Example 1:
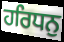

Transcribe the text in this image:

ਹਰਿਧਨੁ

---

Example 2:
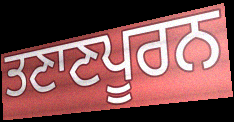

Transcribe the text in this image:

ਤਣਾਣਪੂਰਨ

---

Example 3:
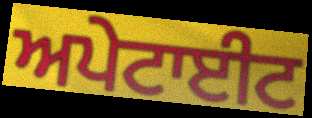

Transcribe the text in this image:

ਅਪੇਟਾਈਟ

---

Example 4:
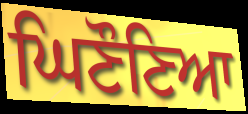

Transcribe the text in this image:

ਘਿਣੌਣਿਆ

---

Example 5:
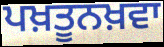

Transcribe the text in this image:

ਪਖ਼ਤੂਨਖ਼ਵਾ